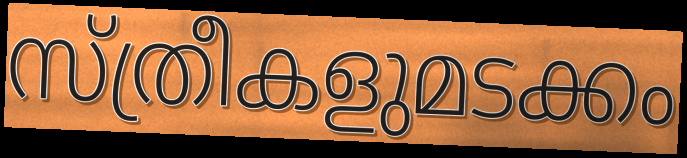
സ്ത്രീകളുമടക്കം